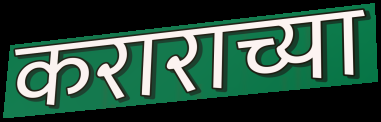
कराराच्या